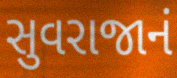
સુવરાજાનં